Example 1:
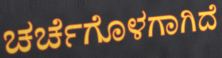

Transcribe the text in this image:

ಚರ್ಚೆಗೊಳಗಾಗಿದೆ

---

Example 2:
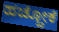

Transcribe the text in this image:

ಹಚ್ಚೋಕೆ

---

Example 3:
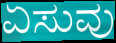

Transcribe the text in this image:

ಏಸುವು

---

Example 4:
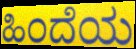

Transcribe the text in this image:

ಹಿಂದೆಯ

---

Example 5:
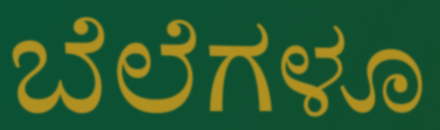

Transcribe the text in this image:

ಬೆಲೆಗಳೂ